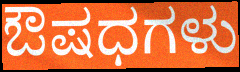
ಔಷಧಗಳು